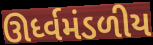
ઊર્ધ્વમંડળીય